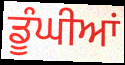
ਡੂੰਘੀਆਂ